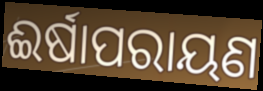
ଈର୍ଷାପରାୟଣ